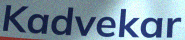
Kadvekar